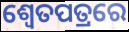
ଶ୍ଵେତପତ୍ରରେ